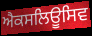
ਐਕਸਲਿਊਸਿਵ